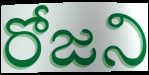
రోజని